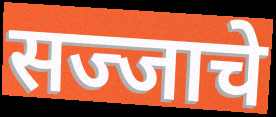
सज्जाचे